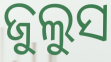
ଜୁଲୁସ